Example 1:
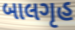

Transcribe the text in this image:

બાલગૃહ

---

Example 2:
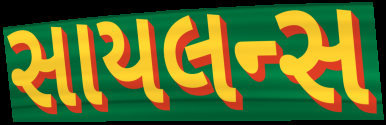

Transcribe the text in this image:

સાયલન્સ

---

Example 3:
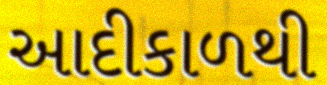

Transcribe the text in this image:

આદીકાળથી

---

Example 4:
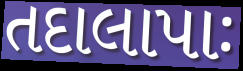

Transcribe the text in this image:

તદાલાપાઃ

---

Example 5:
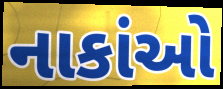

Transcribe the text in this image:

નાકાંઓ